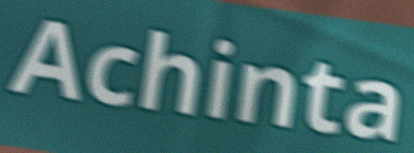
Achinta